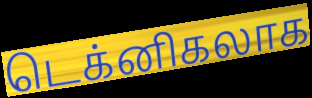
டெக்னிகலாக